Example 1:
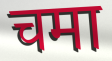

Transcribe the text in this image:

चमा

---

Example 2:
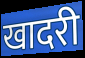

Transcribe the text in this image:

खादरी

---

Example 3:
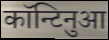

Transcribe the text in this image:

कॉन्टिनुआ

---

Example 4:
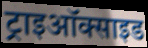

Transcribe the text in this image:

ट्राइऑक्साइड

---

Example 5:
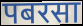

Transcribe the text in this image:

पबरसा